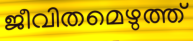
ജീവിതമെഴുത്ത്